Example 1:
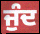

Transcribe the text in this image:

ਜੁੰਦ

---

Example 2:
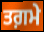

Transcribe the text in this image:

ਤਗ਼ਮੇ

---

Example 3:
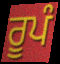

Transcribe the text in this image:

ਰੂਪੰ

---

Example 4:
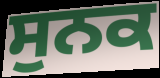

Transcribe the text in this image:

ਸੁਨਕ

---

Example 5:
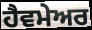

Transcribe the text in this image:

ਹੈਵਮੇਅਰ